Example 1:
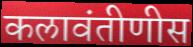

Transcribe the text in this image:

कलावंतीणीस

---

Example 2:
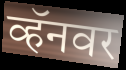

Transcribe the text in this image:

व्हॅनवर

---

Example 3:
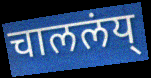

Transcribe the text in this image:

चाललंय्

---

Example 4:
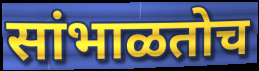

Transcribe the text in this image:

सांभाळतोच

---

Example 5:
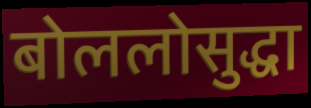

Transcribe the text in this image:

बोललोसुद्धा